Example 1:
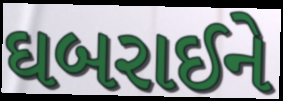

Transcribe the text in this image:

ઘબરાઈને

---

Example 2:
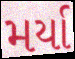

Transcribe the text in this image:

મર્યા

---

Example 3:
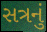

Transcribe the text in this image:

સત્રનું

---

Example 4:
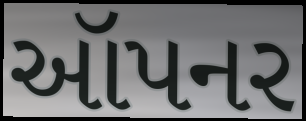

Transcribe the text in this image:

ઑપનર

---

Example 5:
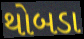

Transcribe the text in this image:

થોબડા